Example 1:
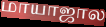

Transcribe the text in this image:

மாயாஜால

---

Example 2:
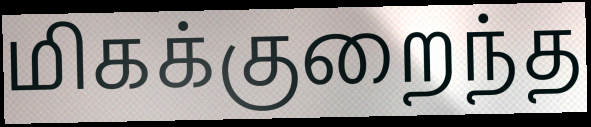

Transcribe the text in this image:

மிகக்குறைந்த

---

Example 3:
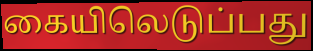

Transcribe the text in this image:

கையிலெடுப்பது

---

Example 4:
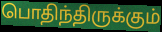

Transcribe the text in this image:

பொதிந்திருக்கும்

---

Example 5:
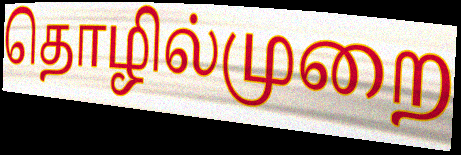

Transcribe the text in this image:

தொழில்முறை